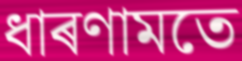
ধাৰণামতে